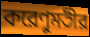
করেণুমতীর